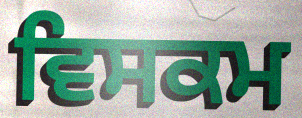
ਵਿਸਕਮ